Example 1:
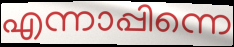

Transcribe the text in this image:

എന്നാപ്പിന്നെ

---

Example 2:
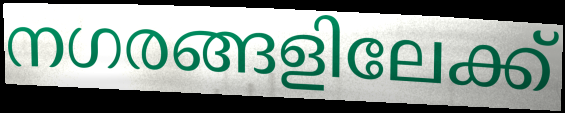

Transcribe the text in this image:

നഗരങ്ങളിലേക്ക്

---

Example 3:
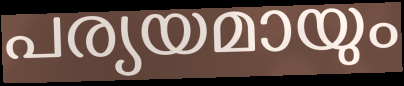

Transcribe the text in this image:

പര്യയമായും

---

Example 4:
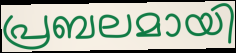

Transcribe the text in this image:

പ്രബലമായി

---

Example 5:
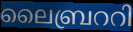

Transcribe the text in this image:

ലൈബ്രററി